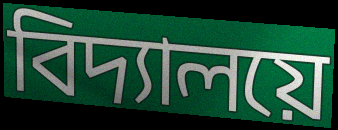
বিদ্যালয়ে